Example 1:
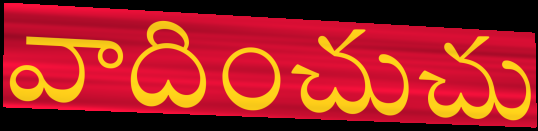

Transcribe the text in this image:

వాదించుచు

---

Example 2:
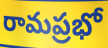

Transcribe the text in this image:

రామప్రభో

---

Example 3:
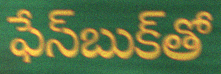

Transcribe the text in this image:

ఫేస్‌బుక్‌తో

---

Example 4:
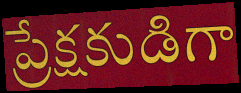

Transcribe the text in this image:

ప్రేక్షకుడిగా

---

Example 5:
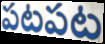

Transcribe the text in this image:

పటపట